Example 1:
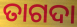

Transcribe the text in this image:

ତାଗଦା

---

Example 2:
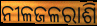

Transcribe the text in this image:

ନୀଳଜଳରାଶି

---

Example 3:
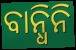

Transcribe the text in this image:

ବାନ୍ଧିନି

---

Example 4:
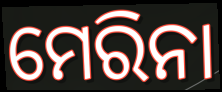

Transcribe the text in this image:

ମେରିନା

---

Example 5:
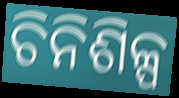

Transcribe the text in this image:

ଚିନିଶିଳ୍ପ